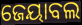
ଜେୟାବଲ